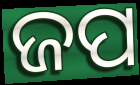
ଜପ